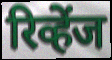
रिव्हेंज